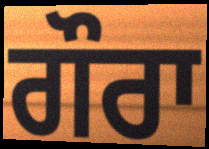
ਗੌਰਾ